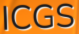
ICGS